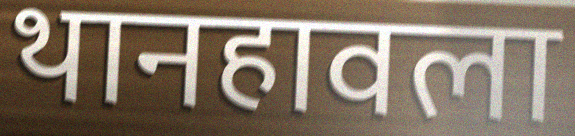
थानहावला